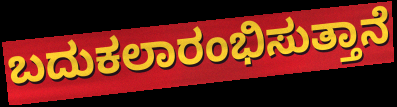
ಬದುಕಲಾರಂಭಿಸುತ್ತಾನೆ